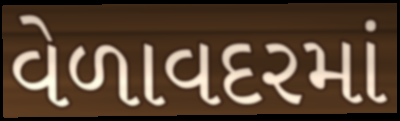
વેળાવદરમાં